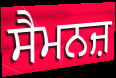
ਸੈਮਨਜ਼